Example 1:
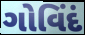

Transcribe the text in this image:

ગોવિંદં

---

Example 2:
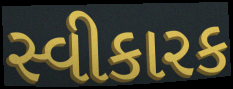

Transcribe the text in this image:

સ્વીકારક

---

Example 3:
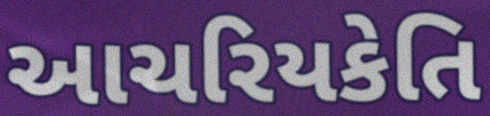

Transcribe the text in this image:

આચરિયકેતિ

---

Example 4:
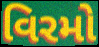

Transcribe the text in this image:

વિરમો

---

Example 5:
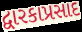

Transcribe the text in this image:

દ્વારકાપ્રસાદ